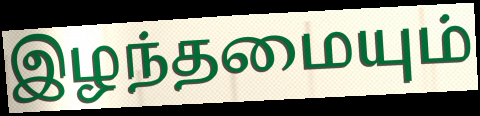
இழந்தமையும்